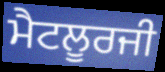
ਮੈਟਲੂਰਜੀ